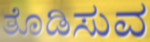
ತೊಡಿಸುವ